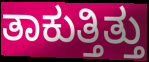
ತಾಕುತ್ತಿತ್ತು